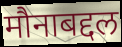
मौनाबद्दल